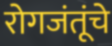
रोगजंतूंचे